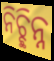
ନିଚ୍ଛିନ୍ନ